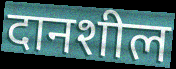
दानशील